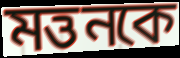
মত্তনকে